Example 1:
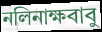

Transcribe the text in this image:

নলিনাক্ষবাবু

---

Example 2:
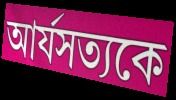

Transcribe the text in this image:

আর্যসত্যকে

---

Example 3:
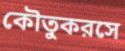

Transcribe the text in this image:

কৌতুকরসে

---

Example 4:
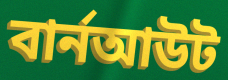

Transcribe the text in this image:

বার্নআউট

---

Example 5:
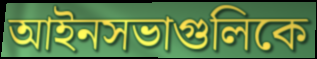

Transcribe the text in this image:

আইনসভাগুলিকে